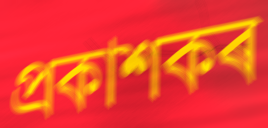
প্ৰকাশকৰ